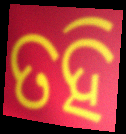
ତହି